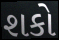
શકો